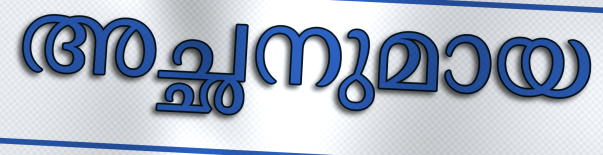
അച്ഛനുമായ